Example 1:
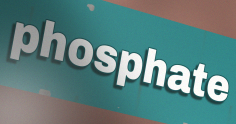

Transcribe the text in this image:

phosphate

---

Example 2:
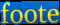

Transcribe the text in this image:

foote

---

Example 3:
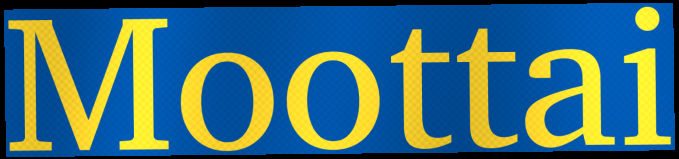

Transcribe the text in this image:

Moottai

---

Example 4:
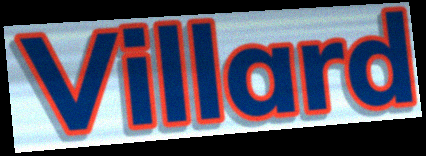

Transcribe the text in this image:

Villard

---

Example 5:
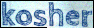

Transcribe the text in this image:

kosher